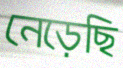
নেড়েছি